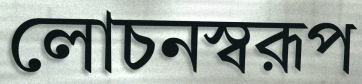
লোচনস্বরূপ